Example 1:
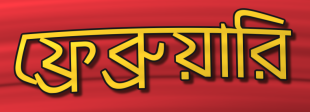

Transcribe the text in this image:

ফ্রেব্রুয়ারি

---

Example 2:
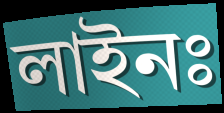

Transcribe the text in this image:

লাইনঃ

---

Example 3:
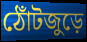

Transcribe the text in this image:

ঠোঁটজুড়ে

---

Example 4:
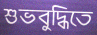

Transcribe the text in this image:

শুভবুদ্ধিতে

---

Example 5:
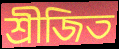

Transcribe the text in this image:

শ্রীজিত